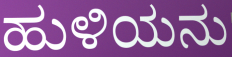
ಹುಳಿಯನು